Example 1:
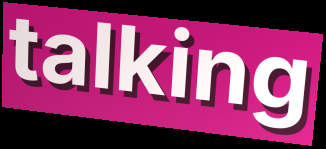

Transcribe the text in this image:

talking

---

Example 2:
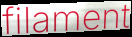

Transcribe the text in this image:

filament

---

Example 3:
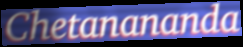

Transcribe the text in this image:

Chetanananda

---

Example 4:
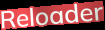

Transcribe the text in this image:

Reloader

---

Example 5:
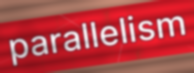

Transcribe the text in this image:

parallelism